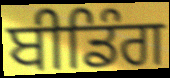
ਬੀਡਿੰਗ